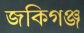
জকিগঞ্জ